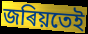
জৰিয়তেই